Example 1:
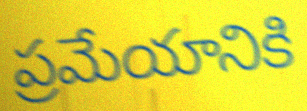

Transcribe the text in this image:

ప్రమేయానికి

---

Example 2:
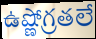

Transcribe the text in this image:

ఉష్ణోగ్రతలే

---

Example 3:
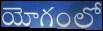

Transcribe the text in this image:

యోగంలో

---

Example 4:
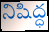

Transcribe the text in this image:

నిషిద్ధ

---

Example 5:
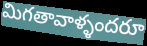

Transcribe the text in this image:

మిగతావాళ్ళందరూ